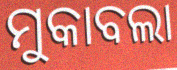
ମୁକାବଲା